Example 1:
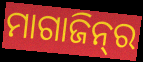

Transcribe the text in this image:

ମାଗାଜିନ୍‍ର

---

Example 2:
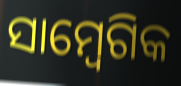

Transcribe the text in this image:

ସାମ୍ବେଗିକ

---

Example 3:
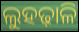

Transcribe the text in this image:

ଲୁହଢ଼ାଳି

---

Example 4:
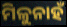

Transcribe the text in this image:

ମିଳୁନାହଁ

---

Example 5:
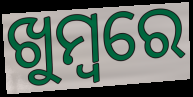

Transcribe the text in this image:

ଖୁମ୍ବରେ